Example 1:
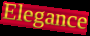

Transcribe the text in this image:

Elegance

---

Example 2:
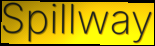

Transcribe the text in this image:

Spillway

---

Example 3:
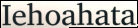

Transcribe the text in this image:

Iehoahata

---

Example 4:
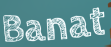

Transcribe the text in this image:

Banat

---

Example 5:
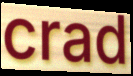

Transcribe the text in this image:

crad